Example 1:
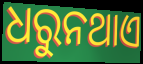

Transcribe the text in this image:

ଧରୁନଥାଏ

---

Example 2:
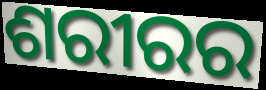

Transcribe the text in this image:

ଶରୀରର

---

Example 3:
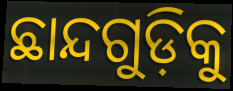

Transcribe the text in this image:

ଛାନ୍ଦଗୁଡ଼ିକୁ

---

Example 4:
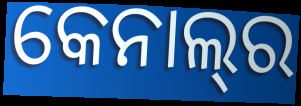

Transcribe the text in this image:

କେନାଲ୍‍ର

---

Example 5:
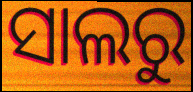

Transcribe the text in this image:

ସାଲରୁ